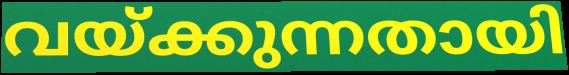
വയ്ക്കുന്നതായി